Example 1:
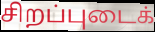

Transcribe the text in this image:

சிறப்புடைக்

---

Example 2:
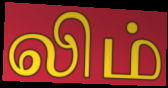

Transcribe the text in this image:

லிம்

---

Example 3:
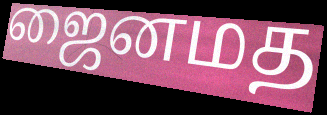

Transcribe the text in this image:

ஜைனமத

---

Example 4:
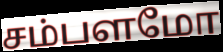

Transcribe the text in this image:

சம்பளமோ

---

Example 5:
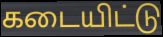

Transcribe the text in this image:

கடையிட்டு